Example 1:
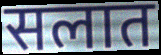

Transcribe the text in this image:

सलात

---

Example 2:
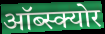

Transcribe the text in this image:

ऑब्स्क्योर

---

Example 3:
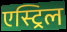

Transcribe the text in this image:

एस्ट्रिल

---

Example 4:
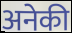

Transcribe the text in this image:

अनेकी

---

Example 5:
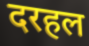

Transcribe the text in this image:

दरहल